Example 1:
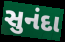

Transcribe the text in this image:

સુનંદા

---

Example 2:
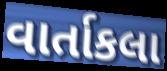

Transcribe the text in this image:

વાર્તાકલા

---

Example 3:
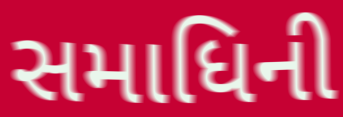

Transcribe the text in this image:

સમાધિની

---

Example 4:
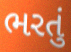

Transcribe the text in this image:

ભરતું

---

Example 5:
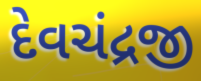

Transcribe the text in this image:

દેવચંદ્રજી